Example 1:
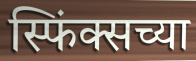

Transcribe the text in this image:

स्फिंक्सच्या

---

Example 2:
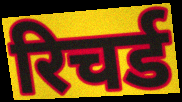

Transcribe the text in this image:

रिचर्ड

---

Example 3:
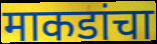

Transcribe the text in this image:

माकडांचा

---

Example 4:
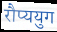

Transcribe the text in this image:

रौप्ययुग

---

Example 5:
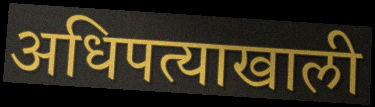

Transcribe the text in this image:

अधिपत्‍याखाली